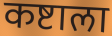
कष्टाला